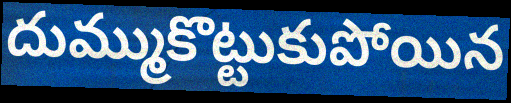
దుమ్ముకొట్టుకుపోయిన